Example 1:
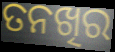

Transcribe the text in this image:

ତନଖିର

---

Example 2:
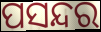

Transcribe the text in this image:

ପସନ୍ଦର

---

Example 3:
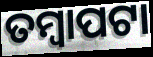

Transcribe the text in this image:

ତମ୍ବାପଟା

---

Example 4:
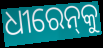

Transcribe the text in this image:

ଧୀରେନ୍‌କୁ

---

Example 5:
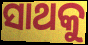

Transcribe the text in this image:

ସାଥକୁ